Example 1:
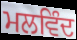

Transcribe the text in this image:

ਮਲਵਿੰਦ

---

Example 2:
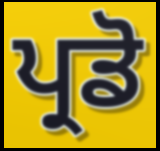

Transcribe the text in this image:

ਪ੍ਰਡੋ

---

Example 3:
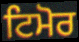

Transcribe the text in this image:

ਟਿਮੋਰ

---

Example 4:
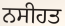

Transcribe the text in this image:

ਨਸੀਹਤ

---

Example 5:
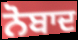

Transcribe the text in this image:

ਨੋਬਾਦ